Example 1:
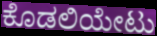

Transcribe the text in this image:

ಕೊಡಲಿಯೇಟು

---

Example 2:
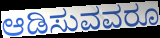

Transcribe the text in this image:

ಆಡಿಸುವವರೂ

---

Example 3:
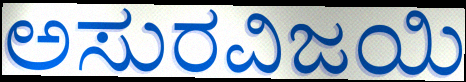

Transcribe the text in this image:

ಅಸುರವಿಜಯಿ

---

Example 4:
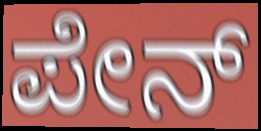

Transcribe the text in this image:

ಪೇನ್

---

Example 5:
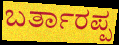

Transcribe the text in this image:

ಬರ್ತಾರಪ್ಪ